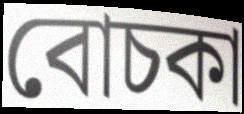
বোচকা